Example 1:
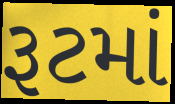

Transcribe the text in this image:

રૂટમાં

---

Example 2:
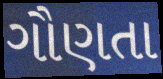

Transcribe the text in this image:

ગૌણતા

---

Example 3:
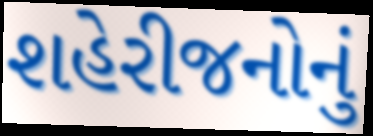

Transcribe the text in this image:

શહેરીજનોનું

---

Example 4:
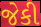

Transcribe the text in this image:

જેકી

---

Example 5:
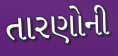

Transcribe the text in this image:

તારણોની